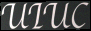
UIUC